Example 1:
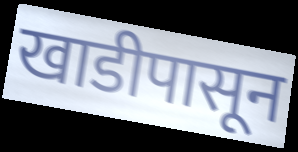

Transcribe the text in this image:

खाडीपासून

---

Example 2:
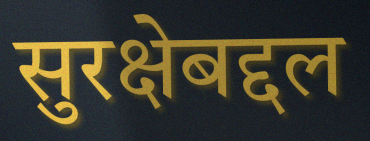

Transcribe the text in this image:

सुरक्षेबद्दल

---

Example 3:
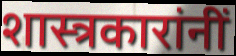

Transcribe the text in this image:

शास्त्रकारांनीं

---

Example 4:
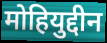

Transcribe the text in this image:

मोहियुद्दीन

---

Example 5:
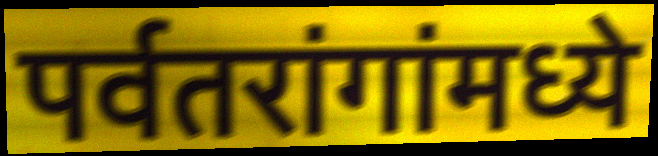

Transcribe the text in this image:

पर्वतरांगांमध्ये